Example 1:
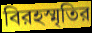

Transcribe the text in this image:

বিরহস্মৃতির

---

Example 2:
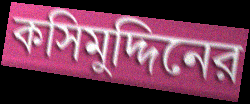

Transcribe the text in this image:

কসিমুদ্দিনের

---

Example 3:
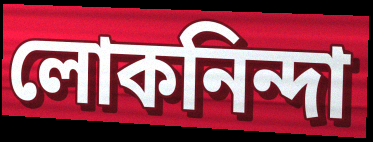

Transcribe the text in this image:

লোকনিন্দা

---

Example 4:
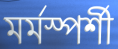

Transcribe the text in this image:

মর্মস্পর্শী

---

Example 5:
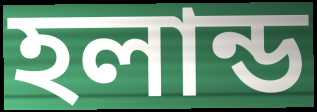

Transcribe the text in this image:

হলান্ড